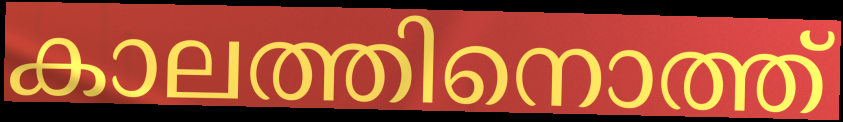
കാലത്തിനൊത്ത്